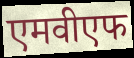
एमवीएफ